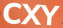
CXY